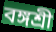
বঙ্গশ্রী